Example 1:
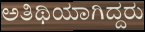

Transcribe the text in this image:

ಅತಿಥಿಯಾಗಿದ್ದರು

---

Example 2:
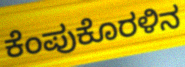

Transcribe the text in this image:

ಕೆಂಪುಕೊರಳಿನ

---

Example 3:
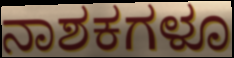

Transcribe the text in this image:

ನಾಶಕಗಳೂ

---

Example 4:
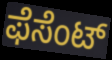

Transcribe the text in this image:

ಫೆಸೆಂಟ್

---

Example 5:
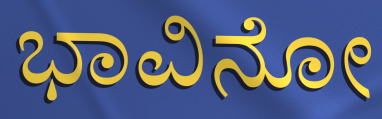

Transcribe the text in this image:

ಭಾವಿನೋ